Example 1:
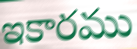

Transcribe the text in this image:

ఇకారము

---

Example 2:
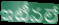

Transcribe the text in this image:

ఇటీవలే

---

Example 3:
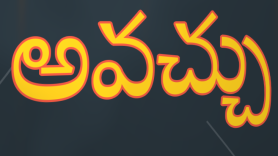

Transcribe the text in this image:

అవచ్చు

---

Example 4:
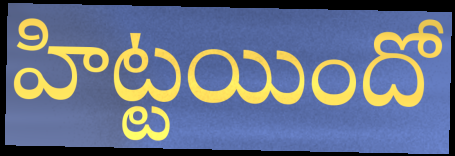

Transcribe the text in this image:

హిట్టయిందో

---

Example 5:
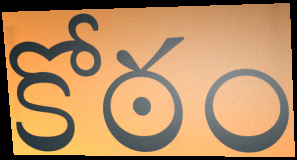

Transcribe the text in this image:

కోఠం